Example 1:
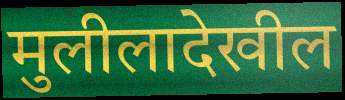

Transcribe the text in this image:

मुलीलादेखील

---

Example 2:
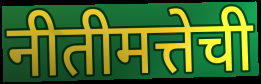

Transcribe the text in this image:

नीतीमत्तेची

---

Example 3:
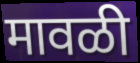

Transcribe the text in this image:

मावळी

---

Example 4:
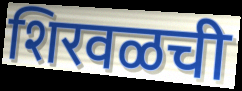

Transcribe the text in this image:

शिरवळची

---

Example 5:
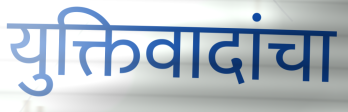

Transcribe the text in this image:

युक्तिवादांचा